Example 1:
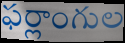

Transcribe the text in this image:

ఫర్లాంగుల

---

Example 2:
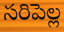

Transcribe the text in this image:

సరిపెల్ల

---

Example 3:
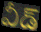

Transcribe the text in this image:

వీడ్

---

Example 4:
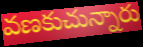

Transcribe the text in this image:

వణకుచున్నారు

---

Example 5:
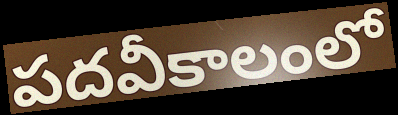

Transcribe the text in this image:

పదవీకాలంలో